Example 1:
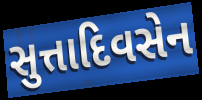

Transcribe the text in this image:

સુત્તાદિવસેન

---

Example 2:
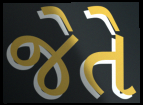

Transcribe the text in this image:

જેતે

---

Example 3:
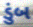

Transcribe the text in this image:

ડુંબ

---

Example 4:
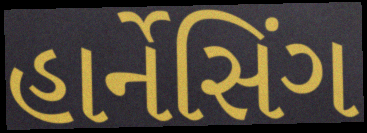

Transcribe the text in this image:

હાર્નેસિંગ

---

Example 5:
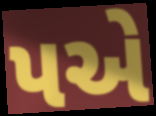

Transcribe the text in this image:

પએ